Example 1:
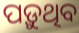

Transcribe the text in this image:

ପଡ଼ୁଥିବ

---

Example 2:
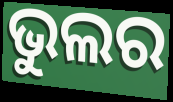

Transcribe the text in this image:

ଭୁଲର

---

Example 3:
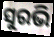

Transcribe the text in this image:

ସୁରଭି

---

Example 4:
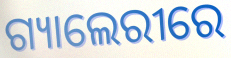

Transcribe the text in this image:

ଗ୍ୟାଲେରୀରେ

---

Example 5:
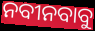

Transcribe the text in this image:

ନବୀନବାବୁ